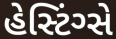
હેસ્ટિંગ્સે